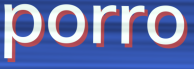
porro